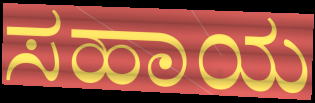
ಸಹಾಯ